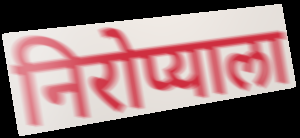
निरोप्याला